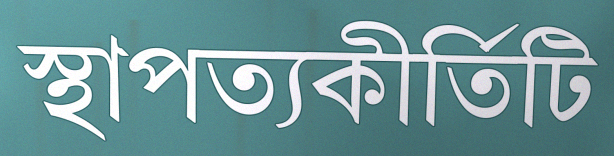
স্থাপত্যকীর্তিটি